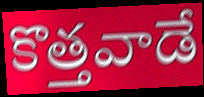
కొత్తవాడే